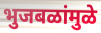
भुजबळांमुळे